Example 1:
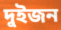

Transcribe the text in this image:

দুইজন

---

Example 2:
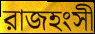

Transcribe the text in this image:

রাজহংসী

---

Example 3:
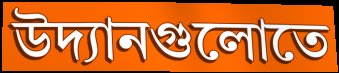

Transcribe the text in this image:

উদ্যানগুলোতে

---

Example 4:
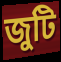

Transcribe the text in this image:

জুটি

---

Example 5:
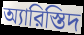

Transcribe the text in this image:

অ্যারিস্তিদ